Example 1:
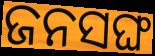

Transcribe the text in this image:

ଜନସଙ୍ଘ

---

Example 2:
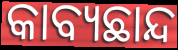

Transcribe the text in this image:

କାବ୍ୟଛାନ୍ଦ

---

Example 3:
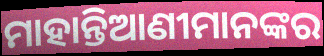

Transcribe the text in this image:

ମାହାନ୍ତିଆଣୀମାନଙ୍କର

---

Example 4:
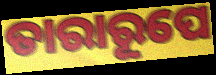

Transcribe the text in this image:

ତାରାରୂପେ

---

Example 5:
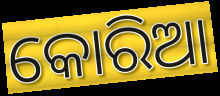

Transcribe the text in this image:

କୋରିଆ